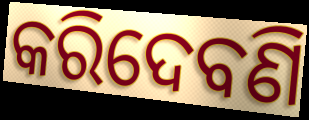
କରିଦେବଣି